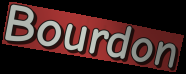
Bourdon